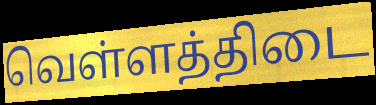
வெள்ளத்திடை